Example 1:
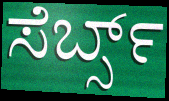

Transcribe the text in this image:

ಸೆರ್ಬ್ಸ್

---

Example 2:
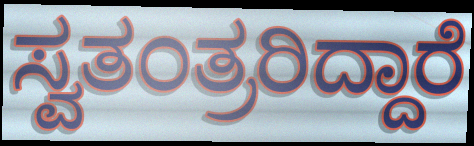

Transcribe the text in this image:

ಸ್ವತಂತ್ರರಿದ್ದಾರೆ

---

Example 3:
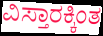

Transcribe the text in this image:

ವಿಸ್ತಾರಕ್ಕಿಂತ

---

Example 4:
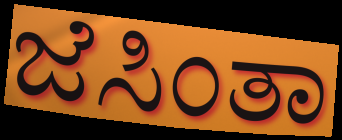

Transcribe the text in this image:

ಜೆಸಿಂತಾ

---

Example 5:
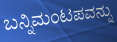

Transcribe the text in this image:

ಬನ್ನಿಮಂಟಪವನ್ನು